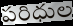
పరిధుల